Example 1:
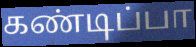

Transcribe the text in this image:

கண்டிப்பா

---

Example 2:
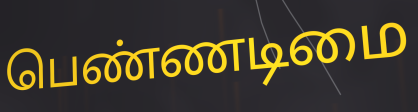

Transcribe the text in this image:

பெண்ணடிமை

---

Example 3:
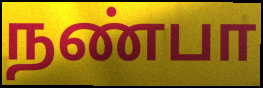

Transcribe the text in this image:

நண்பா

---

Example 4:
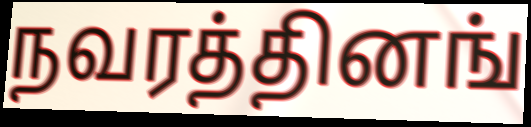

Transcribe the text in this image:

நவரத்தினங்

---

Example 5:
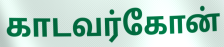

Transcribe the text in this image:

காடவர்கோன்